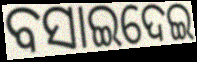
ବସାଇଦେଇ